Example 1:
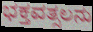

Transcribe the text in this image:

ಭಕ್ತವತ್ಸಲನು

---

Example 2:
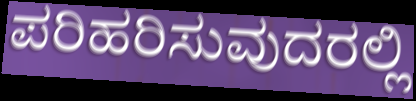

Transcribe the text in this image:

ಪರಿಹರಿಸುವುದರಲ್ಲಿ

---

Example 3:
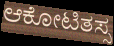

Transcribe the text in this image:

ಆಕೋಟಿತಸ್ಸ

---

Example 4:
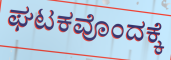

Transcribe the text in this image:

ಘಟಕವೊಂದಕ್ಕೆ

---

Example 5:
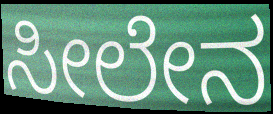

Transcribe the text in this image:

ಸೀಲೇನ